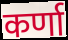
कर्णा